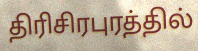
திரிசிரபுரத்தில்